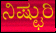
ನಿಷ್ಟುರಿ